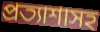
প্রত্যাশাসহ